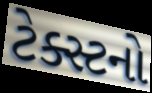
ટેક્સ્ટનો